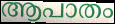
ആപാതം